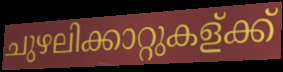
ചുഴലിക്കാറ്റുകള്ക്ക്